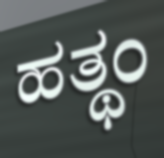
ಹತ್ಥಂ